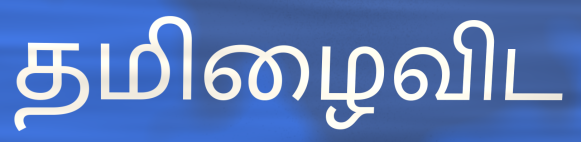
தமிழைவிட